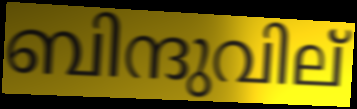
ബിന്ദുവില്